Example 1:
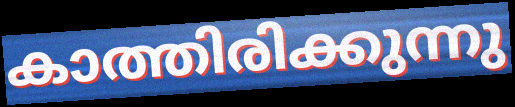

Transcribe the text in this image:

കാത്തിരിക്കുന്നു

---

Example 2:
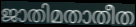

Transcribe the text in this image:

ജാതിമതാതീത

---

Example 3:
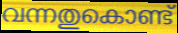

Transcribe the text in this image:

വന്നതുകൊണ്ട്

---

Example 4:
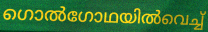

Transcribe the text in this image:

ഗൊൽഗോഥയിൽവെച്ച്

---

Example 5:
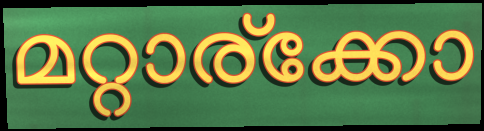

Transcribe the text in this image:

മറ്റാര്ക്കോ